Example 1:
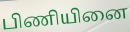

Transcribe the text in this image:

பிணியினை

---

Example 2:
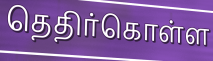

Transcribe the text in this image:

தெதிர்கொள்ள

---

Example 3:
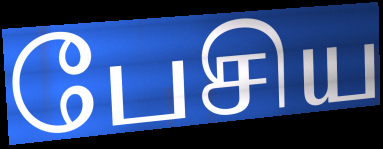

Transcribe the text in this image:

பேசிய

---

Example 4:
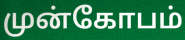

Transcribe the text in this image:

முன்கோபம்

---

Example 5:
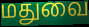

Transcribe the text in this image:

மதுவை